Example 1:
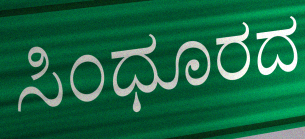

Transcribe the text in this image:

ಸಿಂಧೂರದ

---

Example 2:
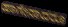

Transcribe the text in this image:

ಹಾಗೇನಾದರೂ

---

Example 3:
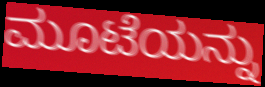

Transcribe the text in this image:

ಮೂಟೆಯನ್ನು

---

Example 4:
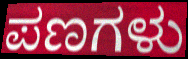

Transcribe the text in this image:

ಪಣಗಳು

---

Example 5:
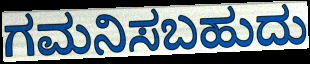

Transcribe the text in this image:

ಗಮನಿಸಬಹುದು